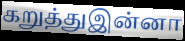
கறுத்துஇன்னா